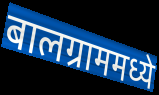
बालग्राममध्ये